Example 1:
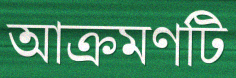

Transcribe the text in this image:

আক্রমণটি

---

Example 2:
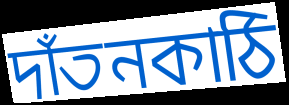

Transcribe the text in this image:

দাঁতনকাঠি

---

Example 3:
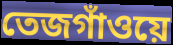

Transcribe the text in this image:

তেজগাঁওয়ে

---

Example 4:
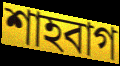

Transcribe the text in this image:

শাহবাগ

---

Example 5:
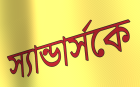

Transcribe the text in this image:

স্যান্ডার্সকে